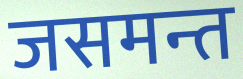
जसमन्त